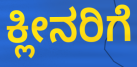
ಕ್ಲೀನರಿಗೆ